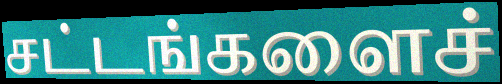
சட்டங்களைச்